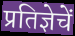
प्रतिज्ञेचें